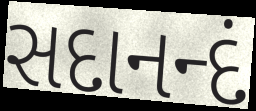
સદાનન્દં